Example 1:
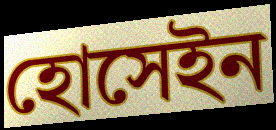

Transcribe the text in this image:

হোসেইন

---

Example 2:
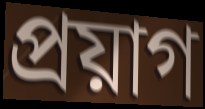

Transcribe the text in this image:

প্রয়াগ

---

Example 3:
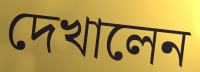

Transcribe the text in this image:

দেখালেন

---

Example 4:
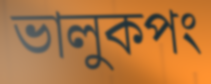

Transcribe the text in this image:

ভালুকপং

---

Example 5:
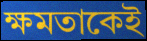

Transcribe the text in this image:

ক্ষমতাকেই